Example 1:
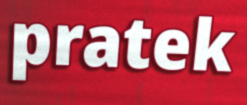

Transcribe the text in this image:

pratek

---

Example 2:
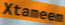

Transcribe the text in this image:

Xtameem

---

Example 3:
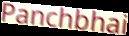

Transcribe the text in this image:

Panchbhai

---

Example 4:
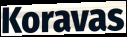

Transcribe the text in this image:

Koravas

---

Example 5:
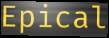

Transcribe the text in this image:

Epical